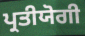
ਪ੍ਰਤੀਯੋਗੀ